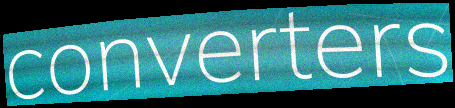
converters